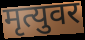
मृत्युवर